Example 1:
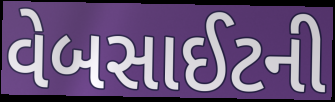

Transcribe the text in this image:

વેબસાઈટની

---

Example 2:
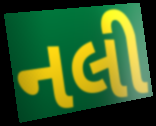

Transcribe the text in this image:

નલી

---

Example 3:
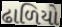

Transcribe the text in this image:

ઢાળિયો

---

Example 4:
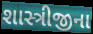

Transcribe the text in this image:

શાસ્ત્રીજીના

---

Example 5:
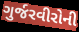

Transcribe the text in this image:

ગુર્જરવીરોની